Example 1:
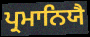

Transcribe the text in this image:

ਪ੍ਰਮਾਨਿਯੈ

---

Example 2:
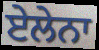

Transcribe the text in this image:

ਏਲੇਨਾ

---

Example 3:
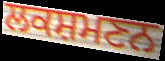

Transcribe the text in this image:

ਲਕਸ਼ਮਣਨ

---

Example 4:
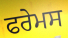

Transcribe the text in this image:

ਫਰੇਮਸ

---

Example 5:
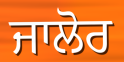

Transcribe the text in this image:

ਜਾਲੋਰ